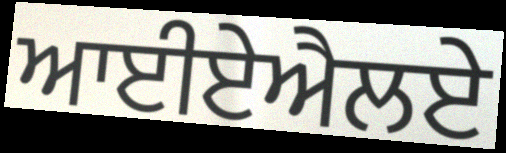
ਆਈਏਐਲਏ